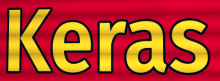
Keras